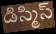
డిస్మిస్